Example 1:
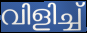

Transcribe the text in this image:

വിളിച്ച്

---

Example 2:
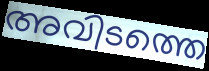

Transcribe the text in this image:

അവിടത്തെ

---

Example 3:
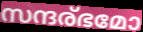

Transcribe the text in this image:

സന്ദര്ഭമോ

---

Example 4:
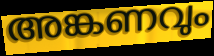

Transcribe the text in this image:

അങ്കണവും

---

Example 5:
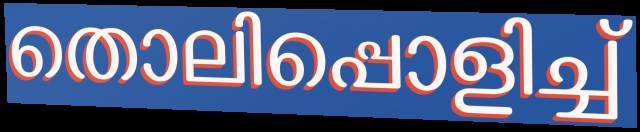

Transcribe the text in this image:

തൊലിപ്പൊളിച്ച്